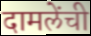
दामलेंची